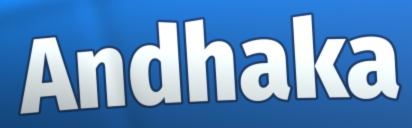
Andhaka